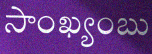
సాంఖ్యంబు